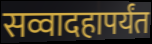
सव्वादहापर्यंत